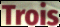
Trois